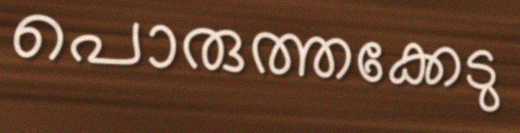
പൊരുത്തക്കേടു